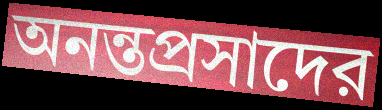
অনন্তপ্রসাদের